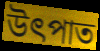
উৎপাত